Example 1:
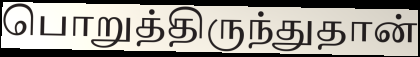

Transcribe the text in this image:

பொறுத்திருந்துதான்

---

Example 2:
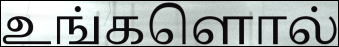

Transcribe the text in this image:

உங்களொல்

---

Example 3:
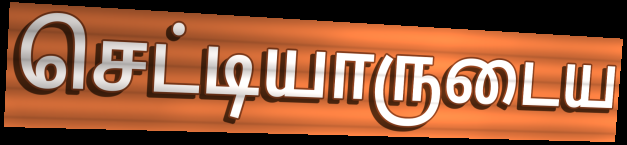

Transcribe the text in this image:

செட்டியாருடைய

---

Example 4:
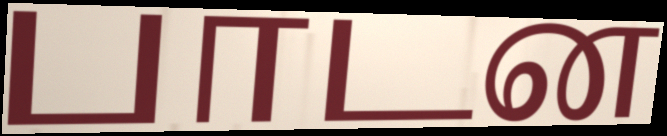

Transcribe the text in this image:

பாடன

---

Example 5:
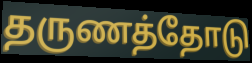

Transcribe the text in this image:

தருணத்தோடு